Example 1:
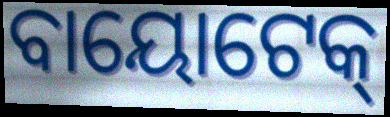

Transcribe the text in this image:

ବାୟୋଟେକ୍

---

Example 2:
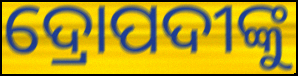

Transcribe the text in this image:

ଦ୍ରୋପଦୀଙ୍କୁ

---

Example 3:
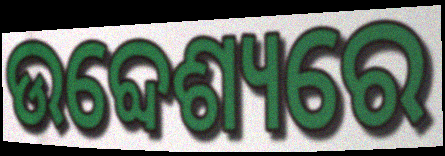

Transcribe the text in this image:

ଉବ୍ଦେଶ୍ୟରେ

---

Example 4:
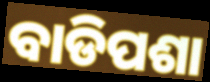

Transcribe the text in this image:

ବାଡିପଶା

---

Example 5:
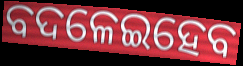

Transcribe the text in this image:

ବଦଳେଇହେବ